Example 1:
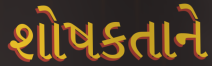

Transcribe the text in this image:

શોષકતાને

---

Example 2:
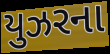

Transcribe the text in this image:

યુઝરના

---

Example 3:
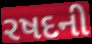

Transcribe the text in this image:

રષદની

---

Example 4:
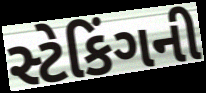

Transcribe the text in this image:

સ્ટેકિંગની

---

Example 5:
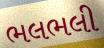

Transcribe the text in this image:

ભલભલી